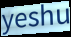
yeshu